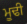
ਮੂਢੀ